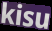
kisu